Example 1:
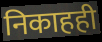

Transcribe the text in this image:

निकाहही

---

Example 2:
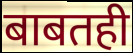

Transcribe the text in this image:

बाबतही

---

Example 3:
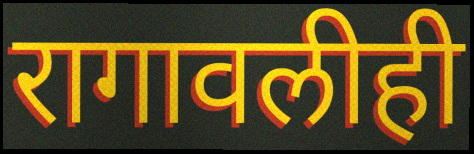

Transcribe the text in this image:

रागावलीही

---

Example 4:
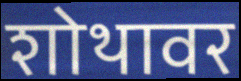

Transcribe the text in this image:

शोथावर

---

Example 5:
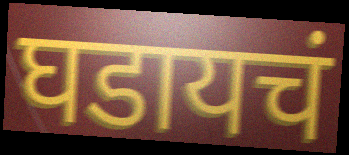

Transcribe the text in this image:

घडायचं